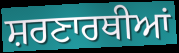
ਸ਼ਰਣਾਰਥੀਆਂ